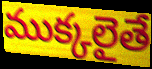
ముక్కలైతే